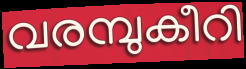
വരമ്പുകീറി